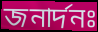
জনার্দনঃ